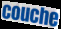
couche